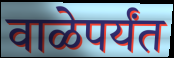
वाळेपर्यंत